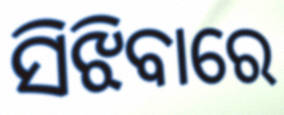
ସିଝିବାରେ